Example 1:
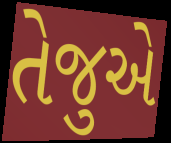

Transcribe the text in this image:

તેજુએ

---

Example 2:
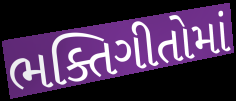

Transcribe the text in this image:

ભક્તિગીતોમાં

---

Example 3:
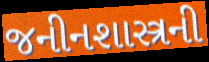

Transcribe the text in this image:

જનીનશાસ્ત્રની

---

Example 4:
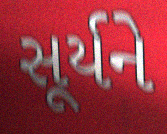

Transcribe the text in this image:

સૂર્યને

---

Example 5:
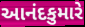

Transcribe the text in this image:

આનંદકુમારે